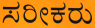
ಸರೀಕರು